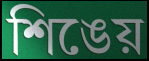
শিঙেয়